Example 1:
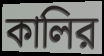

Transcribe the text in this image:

কালির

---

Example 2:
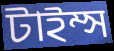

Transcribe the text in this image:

টাইম্স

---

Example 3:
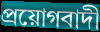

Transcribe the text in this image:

প্রয়োগবাদী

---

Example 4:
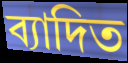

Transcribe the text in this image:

ব্যাদিত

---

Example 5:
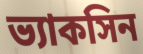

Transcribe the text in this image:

ভ্যাকসিন